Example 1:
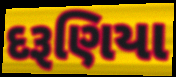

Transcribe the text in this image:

દરૂણિયા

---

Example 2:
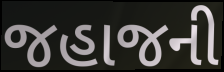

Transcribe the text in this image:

જહાજની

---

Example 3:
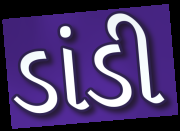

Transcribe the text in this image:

ડાંડી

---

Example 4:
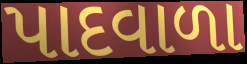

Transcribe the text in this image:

પાદવાળા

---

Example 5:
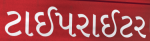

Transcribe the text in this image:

ટાઈપરાઈટર